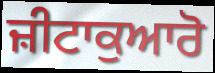
ਜ਼ੀਟਾਕੁਆਰੋ